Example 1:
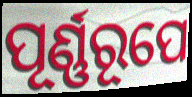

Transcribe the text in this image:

ପୂର୍ଣ୍ଣରୂପେ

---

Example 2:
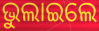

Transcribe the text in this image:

ଭୁଲାଇଲେ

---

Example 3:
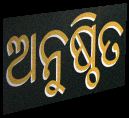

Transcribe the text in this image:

ଅନୁଷ୍ଠିତ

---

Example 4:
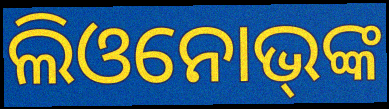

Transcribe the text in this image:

ଲିଓନୋଭ୍‌ଙ୍କ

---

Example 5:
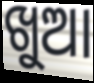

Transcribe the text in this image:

ଖୁଆ